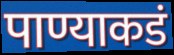
पाण्याकडं